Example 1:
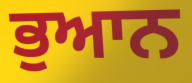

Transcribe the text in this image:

ਭੁਆਨ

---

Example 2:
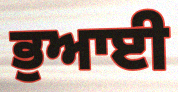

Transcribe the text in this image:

ਭੁਆਈ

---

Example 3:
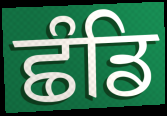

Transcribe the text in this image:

ਛੰਡਿ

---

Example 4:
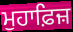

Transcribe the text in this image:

ਮੁਹਾਫ਼ਿਜ਼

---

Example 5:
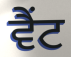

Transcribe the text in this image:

ਵੈਂਟ